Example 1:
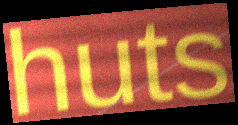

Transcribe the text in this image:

huts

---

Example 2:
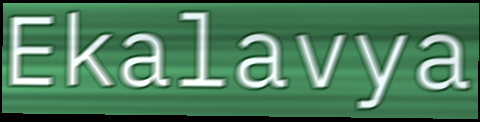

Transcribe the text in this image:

Ekalavya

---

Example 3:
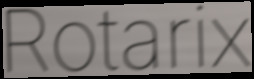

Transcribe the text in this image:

Rotarix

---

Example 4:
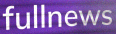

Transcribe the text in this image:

fullnews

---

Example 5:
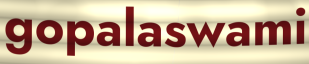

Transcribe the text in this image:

gopalaswami